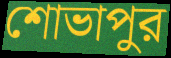
শোভাপুর